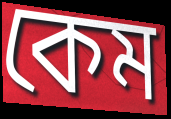
কেম